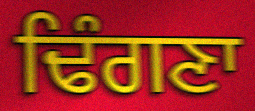
ਢਿੰਗਣਾ